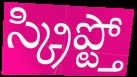
స్క్రిప్ట్తో